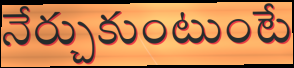
నేర్చుకుంటుంటే